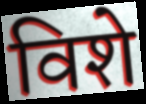
विशे